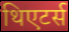
थिएटर्स